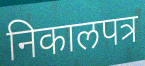
निकालपत्र